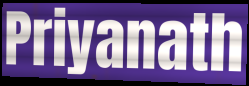
Priyanath